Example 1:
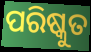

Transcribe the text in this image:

ପରିଷ୍କୁତ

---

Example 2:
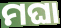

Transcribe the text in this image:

ମଘା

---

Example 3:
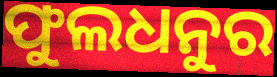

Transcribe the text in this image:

ଫୁଲଧନୁର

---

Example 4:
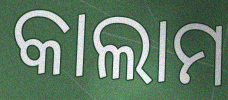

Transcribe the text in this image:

କାଲାମ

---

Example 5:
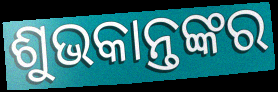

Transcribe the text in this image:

ଶୁଭକାନ୍ତଙ୍କର